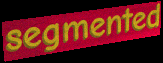
segmented